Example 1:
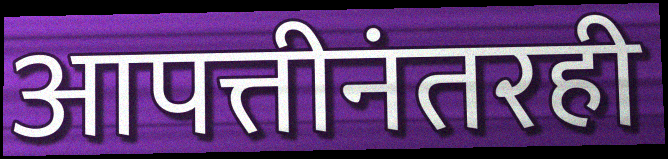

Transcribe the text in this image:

आपत्तीनंतरही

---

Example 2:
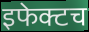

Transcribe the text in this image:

इफेक्टच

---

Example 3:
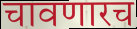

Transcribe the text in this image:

चावणारच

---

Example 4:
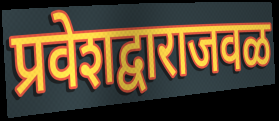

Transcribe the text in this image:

प्रवेशद्वाराजवळ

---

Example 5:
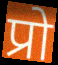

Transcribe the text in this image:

प्रो